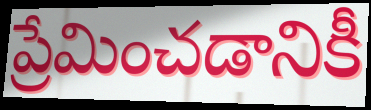
ప్రేమించడానికీ